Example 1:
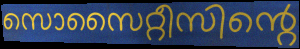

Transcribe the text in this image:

സൊസൈറ്റീസിന്റെ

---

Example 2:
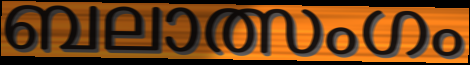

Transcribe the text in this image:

ബലാത്സംഗം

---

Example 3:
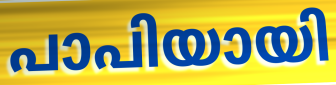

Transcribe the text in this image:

പാപിയായി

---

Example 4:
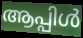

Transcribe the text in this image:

ആപ്പിൾ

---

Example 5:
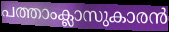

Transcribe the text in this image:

പത്താംക്ലാസുകാരൻ